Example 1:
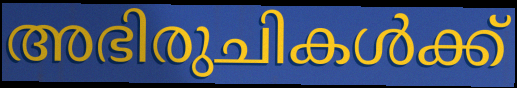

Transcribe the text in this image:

അഭിരുചികൾക്ക്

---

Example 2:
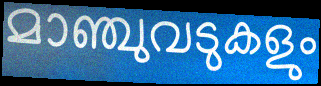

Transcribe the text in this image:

മാഞ്ചുവടുകളും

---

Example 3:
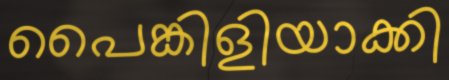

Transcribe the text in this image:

പൈങ്കിളിയാക്കി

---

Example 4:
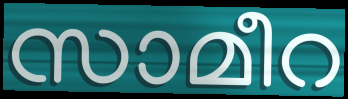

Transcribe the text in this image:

സാമീറ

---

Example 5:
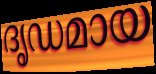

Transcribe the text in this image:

ദൃഡമായ